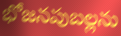
భోజనపుబల్లను